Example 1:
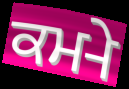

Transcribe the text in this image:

ਕਮ੍ਮੇ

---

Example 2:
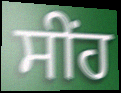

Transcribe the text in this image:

ਸੀਂਹ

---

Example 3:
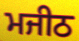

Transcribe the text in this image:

ਮਜੀਠ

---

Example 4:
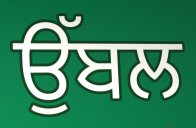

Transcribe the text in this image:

ਉੱਬਲ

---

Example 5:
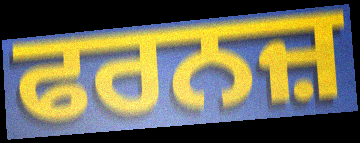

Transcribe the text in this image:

ਫਰਨਜ਼